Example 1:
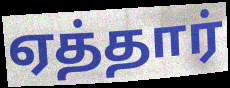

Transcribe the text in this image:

ஏத்தார்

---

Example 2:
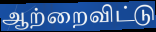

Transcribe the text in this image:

ஆற்றைவிட்டு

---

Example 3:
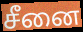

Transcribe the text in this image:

சீனை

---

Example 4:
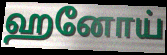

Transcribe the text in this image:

ஹனோய்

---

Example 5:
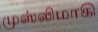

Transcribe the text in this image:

முஸ்லிமாகி